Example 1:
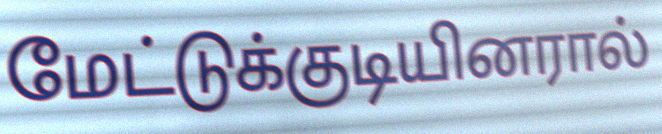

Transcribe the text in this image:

மேட்டுக்குடியினரால்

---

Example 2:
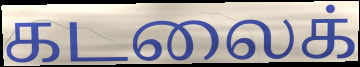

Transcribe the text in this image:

கடலைக்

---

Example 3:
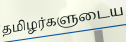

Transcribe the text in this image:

தமிழர்களுடைய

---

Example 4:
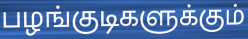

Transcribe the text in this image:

பழங்குடிகளுக்கும்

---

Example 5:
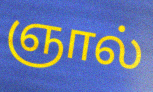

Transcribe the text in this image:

ஞால்